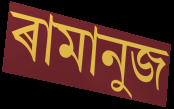
ৰামানুজ